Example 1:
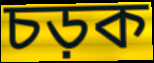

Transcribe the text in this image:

চড়ক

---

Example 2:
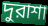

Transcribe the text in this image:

দুরাশা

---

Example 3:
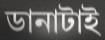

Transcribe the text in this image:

ডানাটাই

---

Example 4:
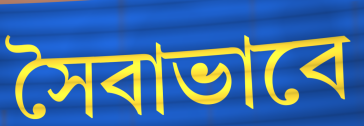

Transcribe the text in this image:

সৈবাভাবে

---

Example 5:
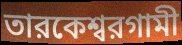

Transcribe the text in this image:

তারকেশ্বরগামী